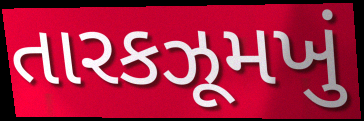
તારકઝૂમખું